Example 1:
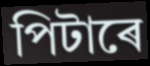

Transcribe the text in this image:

পিটাৰে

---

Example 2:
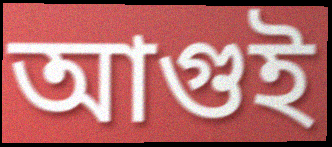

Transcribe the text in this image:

আগুই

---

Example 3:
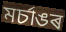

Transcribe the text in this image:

মৰ্চাঙৰ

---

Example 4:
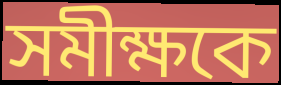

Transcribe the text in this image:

সমীক্ষকে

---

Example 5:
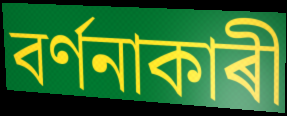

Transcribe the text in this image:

বৰ্ণনাকাৰী